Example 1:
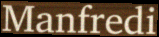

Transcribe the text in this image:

Manfredi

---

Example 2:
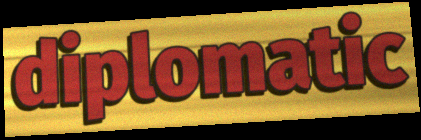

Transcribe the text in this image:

diplomatic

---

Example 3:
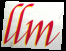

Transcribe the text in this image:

llm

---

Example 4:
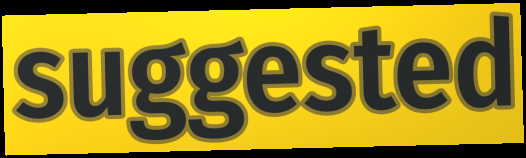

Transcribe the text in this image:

suggested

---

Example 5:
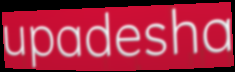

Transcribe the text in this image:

upadesha